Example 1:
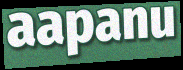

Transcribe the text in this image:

aapanu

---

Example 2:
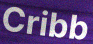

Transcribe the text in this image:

Cribb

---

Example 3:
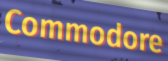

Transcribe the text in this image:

Commodore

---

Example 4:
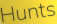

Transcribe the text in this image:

Hunts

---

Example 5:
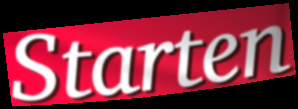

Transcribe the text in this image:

Starten